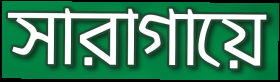
সারাগায়ে